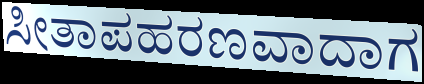
ಸೀತಾಪಹರಣವಾದಾಗ